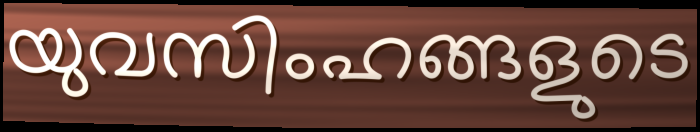
യുവസിംഹങ്ങളുടെ